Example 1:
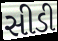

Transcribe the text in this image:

સીડી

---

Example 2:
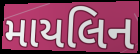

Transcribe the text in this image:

માયલિન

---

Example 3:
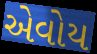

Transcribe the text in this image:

એવોય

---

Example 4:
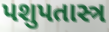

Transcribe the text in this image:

પશુપતાસ્ત્ર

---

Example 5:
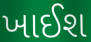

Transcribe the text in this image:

ખાઈશ